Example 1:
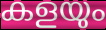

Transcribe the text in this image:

കളയും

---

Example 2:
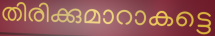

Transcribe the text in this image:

തിരിക്കുമാറാകട്ടെ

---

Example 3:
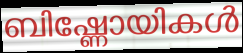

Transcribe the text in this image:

ബിഷ്ണോയികൾ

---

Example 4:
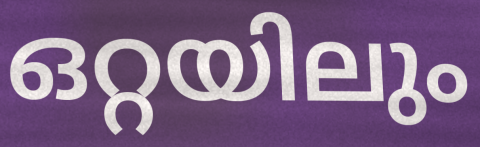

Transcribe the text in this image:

ഒറ്റയിലും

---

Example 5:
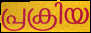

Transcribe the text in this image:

പ്രക്രിയ